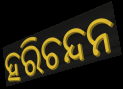
ହରିଚନ୍ଦନ